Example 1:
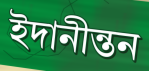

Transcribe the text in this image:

ইদানীন্তন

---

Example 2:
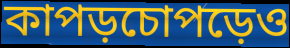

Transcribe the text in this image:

কাপড়চোপড়েও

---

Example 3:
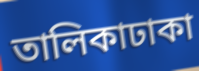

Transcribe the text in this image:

তালিকাঢাকা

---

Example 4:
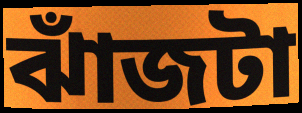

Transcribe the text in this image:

ঝাঁজটা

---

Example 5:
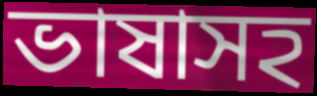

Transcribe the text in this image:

ভাষাসহ